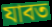
যাবত